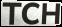
TCH